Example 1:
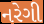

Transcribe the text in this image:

નરેગી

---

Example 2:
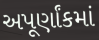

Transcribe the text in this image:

અપૂર્ણાંકમાં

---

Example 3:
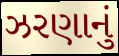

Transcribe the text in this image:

ઝરણાનું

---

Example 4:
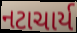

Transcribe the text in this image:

નટાચાર્ય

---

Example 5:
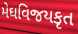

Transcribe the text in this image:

મેઘવિજયકૃત